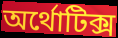
অর্থোটিক্স